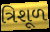
ત્રિશૂળ